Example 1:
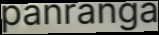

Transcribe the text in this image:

panranga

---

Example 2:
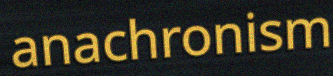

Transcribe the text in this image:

anachronism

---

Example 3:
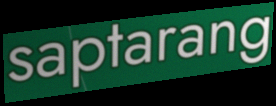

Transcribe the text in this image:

saptarang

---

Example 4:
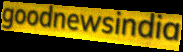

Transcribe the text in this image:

goodnewsindia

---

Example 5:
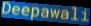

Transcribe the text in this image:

Deepawali